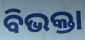
ବିଭକ୍ତା